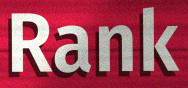
Rank